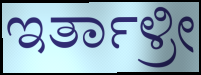
ಇರ್ತಾಳ್ರೀ